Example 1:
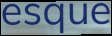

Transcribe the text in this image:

esque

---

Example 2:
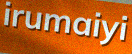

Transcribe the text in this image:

irumaiyi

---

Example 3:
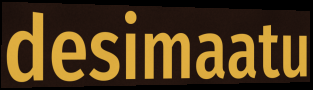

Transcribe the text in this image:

desimaatu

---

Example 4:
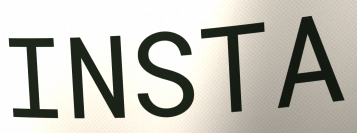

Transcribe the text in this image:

INSTA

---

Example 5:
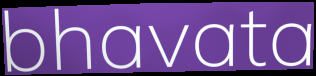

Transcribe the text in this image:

bhavata